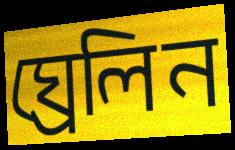
ঘ্ৰেলিন